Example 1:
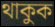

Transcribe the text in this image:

থাকুক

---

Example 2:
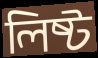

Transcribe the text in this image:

লিষ্ট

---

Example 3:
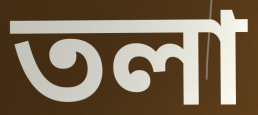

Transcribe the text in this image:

তলা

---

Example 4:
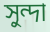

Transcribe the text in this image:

সুন্দা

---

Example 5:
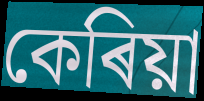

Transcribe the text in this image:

কেৰিয়া